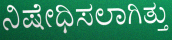
ನಿಷೇಧಿಸಲಾಗಿತ್ತು